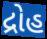
દ્રોહ